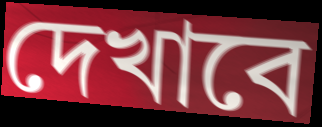
দেখাবে